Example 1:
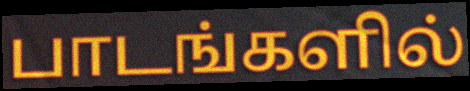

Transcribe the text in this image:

பாடங்களில்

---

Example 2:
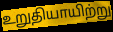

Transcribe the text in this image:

உறுதியாயிற்று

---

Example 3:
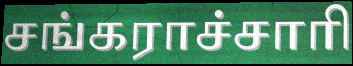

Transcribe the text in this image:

சங்கராச்சாரி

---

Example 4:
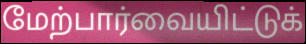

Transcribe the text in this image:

மேற்பார்வையிட்டுக்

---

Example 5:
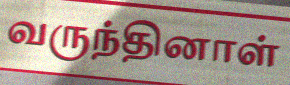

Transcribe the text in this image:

வருந்தினாள்